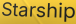
Starship